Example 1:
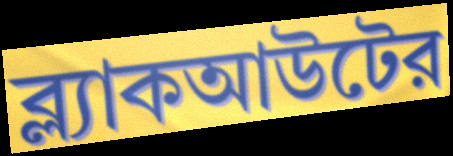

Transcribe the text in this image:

ব্ল্যাকআউটের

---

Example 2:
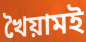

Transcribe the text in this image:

খৈয়ামই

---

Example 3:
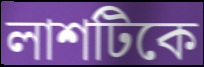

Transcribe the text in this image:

লাশটিকে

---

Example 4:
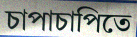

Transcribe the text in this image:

চাপাচাপিতে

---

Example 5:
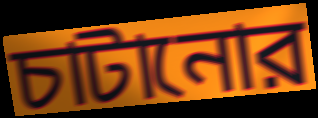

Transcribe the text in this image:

চাটানোর